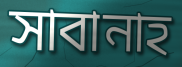
সাবানাহ